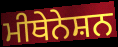
ਮੀਥੇਨੇਸ਼ਨ